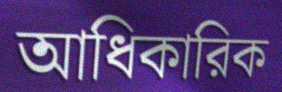
আধিকারিক